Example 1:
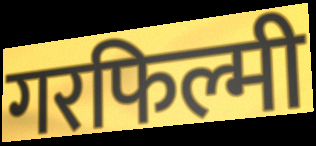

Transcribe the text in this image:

गरफिल्मी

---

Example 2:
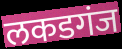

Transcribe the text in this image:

लकडगंज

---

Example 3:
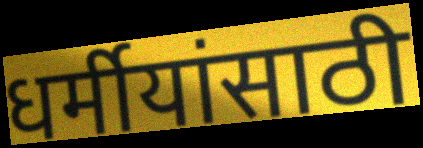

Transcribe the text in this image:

धर्मीयांसाठी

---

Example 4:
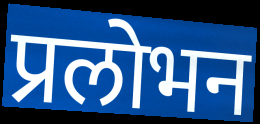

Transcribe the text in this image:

प्रलोभन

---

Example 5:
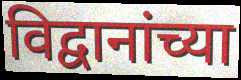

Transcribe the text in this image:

विद्वानांच्या